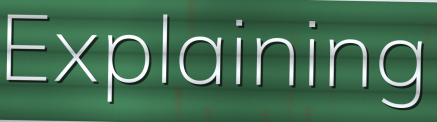
Explaining